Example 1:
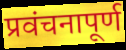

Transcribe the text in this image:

प्रवंचनापूर्ण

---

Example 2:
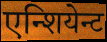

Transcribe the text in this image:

एन्शियेन्ट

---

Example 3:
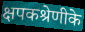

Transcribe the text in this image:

क्षपकश्रेणीके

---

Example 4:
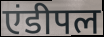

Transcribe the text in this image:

एंडीपल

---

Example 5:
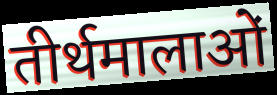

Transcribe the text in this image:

तीर्थमालाओं